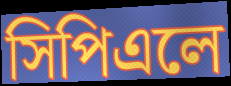
সিপিএলে